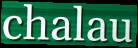
chalau